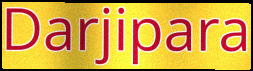
Darjipara